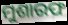
ମୁଶାରଫ